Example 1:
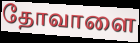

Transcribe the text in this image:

தோவாளை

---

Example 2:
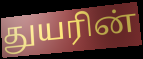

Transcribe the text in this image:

துயரின்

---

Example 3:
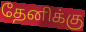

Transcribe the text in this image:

தேனிக்கு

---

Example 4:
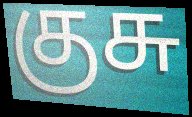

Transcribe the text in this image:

குசு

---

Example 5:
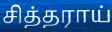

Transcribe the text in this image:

சித்தராய்